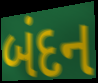
બંદન